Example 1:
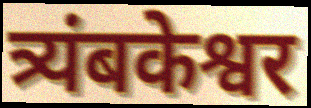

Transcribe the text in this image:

त्र्यंबकेश्वर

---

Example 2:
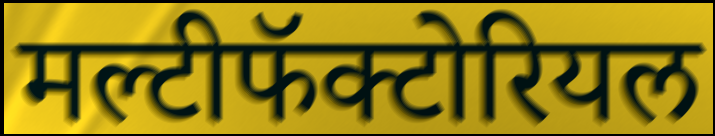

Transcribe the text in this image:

मल्टीफॅक्टोरियल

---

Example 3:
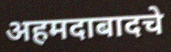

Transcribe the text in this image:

अहमदाबादचे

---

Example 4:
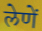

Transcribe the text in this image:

लेणें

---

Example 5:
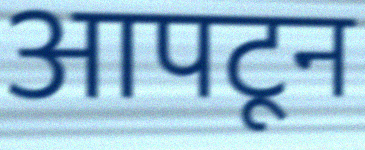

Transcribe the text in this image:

आपटून